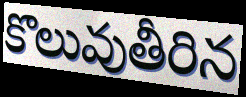
కొలువుతీరిన